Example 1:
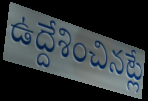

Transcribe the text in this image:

ఉద్దేశించినట్లే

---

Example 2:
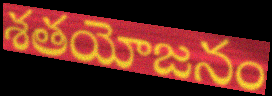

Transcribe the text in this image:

శతయోజనం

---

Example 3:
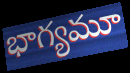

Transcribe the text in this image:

భాగ్యమూ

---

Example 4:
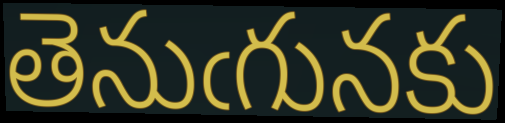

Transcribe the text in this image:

తెనుఁగునకు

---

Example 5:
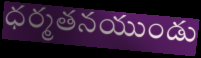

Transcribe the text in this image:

ధర్మతనయుండు